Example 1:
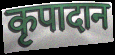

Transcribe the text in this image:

कृपादान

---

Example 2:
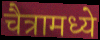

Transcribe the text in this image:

चैत्रामध्ये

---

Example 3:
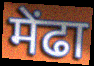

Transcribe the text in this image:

मेंढा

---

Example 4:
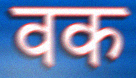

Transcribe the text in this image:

वक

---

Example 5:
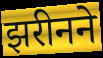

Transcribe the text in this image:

झरीनने